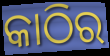
କାଠିର